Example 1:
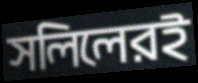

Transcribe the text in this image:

সলিলেরই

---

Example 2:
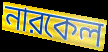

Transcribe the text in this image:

নারকেল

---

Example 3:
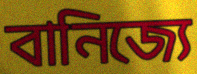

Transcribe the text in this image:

বানিজ্যে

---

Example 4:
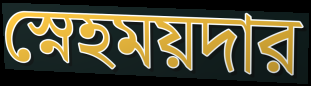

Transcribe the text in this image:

স্নেহময়দার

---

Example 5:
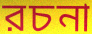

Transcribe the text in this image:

রচনা